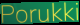
Porukki